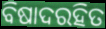
ବିଷାଦରହିତ